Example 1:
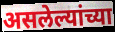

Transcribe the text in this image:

असलेल्यांच्या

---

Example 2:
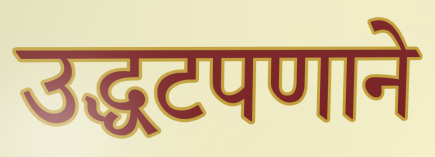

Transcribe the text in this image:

उद्धटपणाने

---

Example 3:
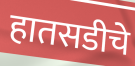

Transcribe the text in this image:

हातसडीचे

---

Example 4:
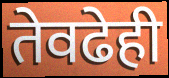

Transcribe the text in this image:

तेवढेही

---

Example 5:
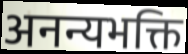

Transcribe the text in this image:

अनन्यभक्ति